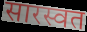
सारस्वत